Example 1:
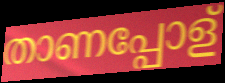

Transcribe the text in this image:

താണപ്പോള്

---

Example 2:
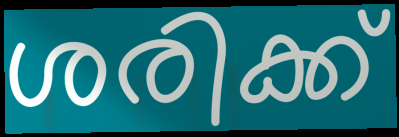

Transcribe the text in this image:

ശരിക്ക്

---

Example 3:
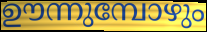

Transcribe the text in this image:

ഊന്നുമ്പോഴും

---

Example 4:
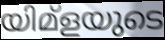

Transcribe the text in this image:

യിമ്ളയുടെ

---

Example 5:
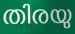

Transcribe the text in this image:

തിരയു